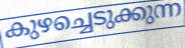
കുഴച്ചെടുക്കുന്ന